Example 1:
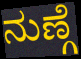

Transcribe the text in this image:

ನುಣ್ಗೆ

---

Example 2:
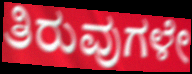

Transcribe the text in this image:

ತಿರುವುಗಳೇ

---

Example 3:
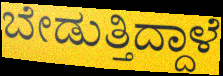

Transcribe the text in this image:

ಬೇಡುತ್ತಿದ್ದಾಳೆ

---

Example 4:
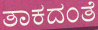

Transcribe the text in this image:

ತಾಕದಂತೆ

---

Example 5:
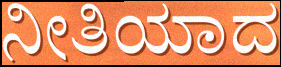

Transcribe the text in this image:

ನೀತಿಯಾದ